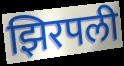
झिरपली